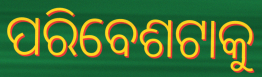
ପରିବେଶଟାକୁ